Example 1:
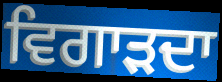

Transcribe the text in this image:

ਵਿਗਾੜਦਾ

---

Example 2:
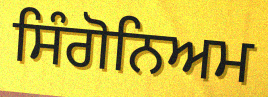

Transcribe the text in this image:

ਸਿੰਗੋਨਿਅਮ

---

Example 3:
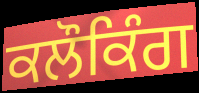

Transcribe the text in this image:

ਕਲੌਕਿੰਗ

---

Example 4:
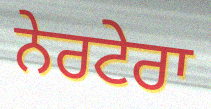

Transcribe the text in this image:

ਨੇਰਟੇਰਾ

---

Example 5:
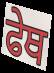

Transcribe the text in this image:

ਫੇਥ